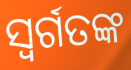
ସ୍ୱର୍ଗତଙ୍କ